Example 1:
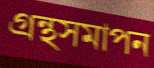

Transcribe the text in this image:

গ্রন্থসমাপন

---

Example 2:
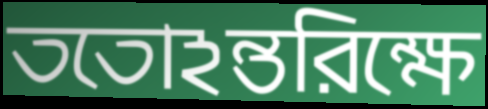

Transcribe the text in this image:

ততোঽন্তরিক্ষে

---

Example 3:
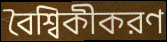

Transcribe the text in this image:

বৈশ্বিকীকরণ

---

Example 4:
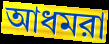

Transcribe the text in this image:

আধমরা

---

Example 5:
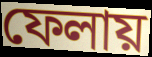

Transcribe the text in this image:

ফেলায়